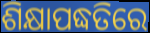
ଶିକ୍ଷାପଦ୍ଧତିରେ